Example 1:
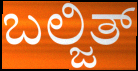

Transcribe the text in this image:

ಬಲ್ಜಿತ್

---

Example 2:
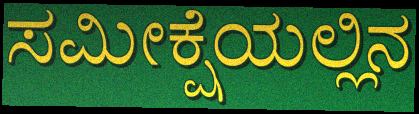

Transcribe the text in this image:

ಸಮೀಕ್ಷೆಯಲ್ಲಿನ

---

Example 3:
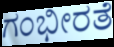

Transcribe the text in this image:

ಗಂಭೀರತೆ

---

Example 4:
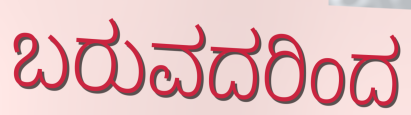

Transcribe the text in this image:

ಬರುವದರಿಂದ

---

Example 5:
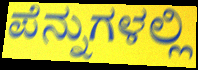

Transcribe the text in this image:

ಪೆನ್ನುಗಳಲ್ಲಿ